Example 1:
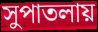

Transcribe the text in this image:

সুপাতলায়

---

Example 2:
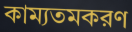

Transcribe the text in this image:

কাম্যতমকরণ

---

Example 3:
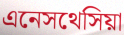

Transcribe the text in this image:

এনেসথেসিয়া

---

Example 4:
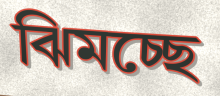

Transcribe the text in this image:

ঝিমচ্ছে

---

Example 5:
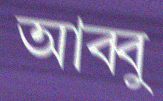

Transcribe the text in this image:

আব্বু